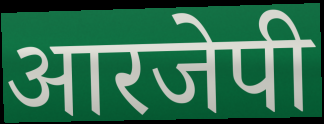
आरजेपी